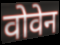
वोवेन